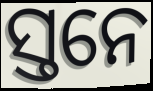
ସ୍ତନେ